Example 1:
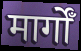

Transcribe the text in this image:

मार्गोँ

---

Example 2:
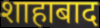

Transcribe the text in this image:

शाहाबाद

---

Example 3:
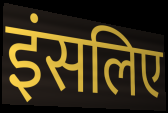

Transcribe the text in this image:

इंसलिए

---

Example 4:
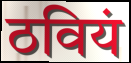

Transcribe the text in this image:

ठवियं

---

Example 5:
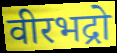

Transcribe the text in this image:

वीरभद्रो